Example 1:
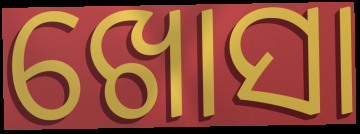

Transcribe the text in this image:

ଖୋସା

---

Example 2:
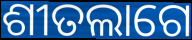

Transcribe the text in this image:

ଶୀତଲାଗେ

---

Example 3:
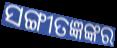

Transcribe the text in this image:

ସଙ୍ଗୀତଜ୍ଞଙ୍କର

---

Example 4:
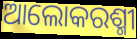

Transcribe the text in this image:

ଆଲୋକରଶ୍ମୀ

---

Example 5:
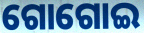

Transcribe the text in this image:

ଗୋଗୋଇ